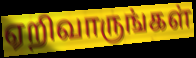
ஏறிவாருங்கள்